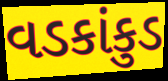
વડકાંકુડ